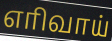
எரிவாய்